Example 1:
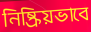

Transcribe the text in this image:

নিষ্ক্রিয়ভাবে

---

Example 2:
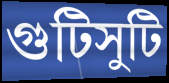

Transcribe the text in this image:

গুটিসুটি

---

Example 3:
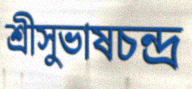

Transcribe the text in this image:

শ্রীসুভাষচন্দ্র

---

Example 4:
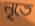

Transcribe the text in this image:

নৃতে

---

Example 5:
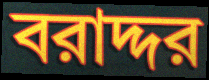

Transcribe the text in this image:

বরাদ্দর